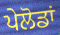
ਪੇਲੋਡਾਂ